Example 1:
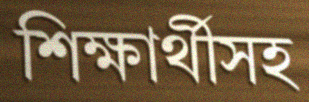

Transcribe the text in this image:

শিক্ষার্থীসহ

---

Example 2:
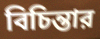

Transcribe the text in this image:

বিচিন্তার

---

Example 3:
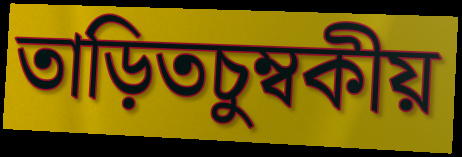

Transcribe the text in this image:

তাড়িতচুম্বকীয়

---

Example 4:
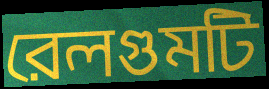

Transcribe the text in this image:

রেলগুমটি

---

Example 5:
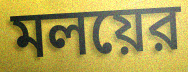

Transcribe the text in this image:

মলয়ের